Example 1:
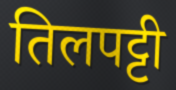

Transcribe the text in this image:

तिलपट्टी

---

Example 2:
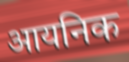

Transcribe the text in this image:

आयनिक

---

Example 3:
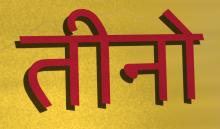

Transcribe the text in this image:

तीनो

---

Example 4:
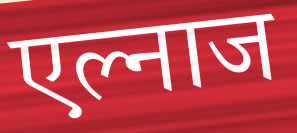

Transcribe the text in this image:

एल्नाज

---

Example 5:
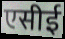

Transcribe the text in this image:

एसीई